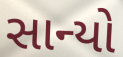
સાન્યો